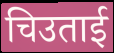
चिउताई